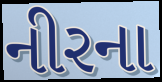
નીરના